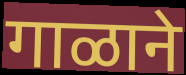
गाळाने